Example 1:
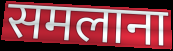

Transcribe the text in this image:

समलाना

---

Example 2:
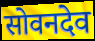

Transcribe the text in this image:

सोवनदेव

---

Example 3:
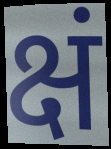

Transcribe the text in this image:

क्षं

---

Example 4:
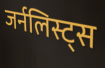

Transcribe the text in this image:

जर्नलिस्ट्स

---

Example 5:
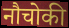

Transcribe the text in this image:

नौचोकी